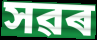
সৱৰ